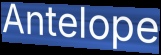
Antelope